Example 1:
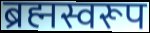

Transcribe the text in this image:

ब्रह्मस्वरूप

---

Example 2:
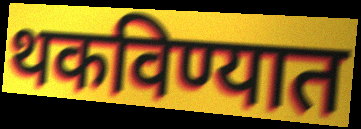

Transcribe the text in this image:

थकविण्यात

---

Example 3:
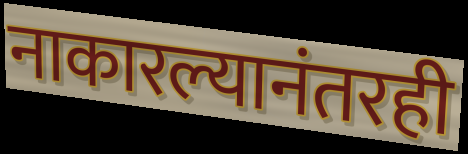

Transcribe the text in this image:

नाकारल्यानंतरही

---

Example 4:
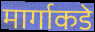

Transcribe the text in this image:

मार्गाकडे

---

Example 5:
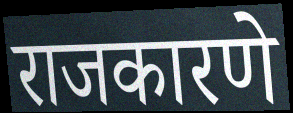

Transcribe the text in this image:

राजकारणे